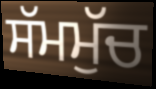
ਸੱਮਮੁੱਚ